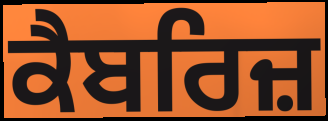
ਕੈਬਰਿਜ਼